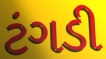
ટંગડી